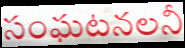
సంఘటనలనీ